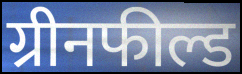
ग्रीनफील्‍ड